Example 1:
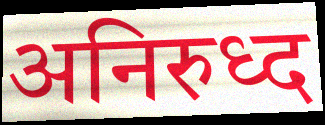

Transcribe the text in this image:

अनिरुध्द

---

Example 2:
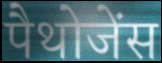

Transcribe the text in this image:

पैथोजेंस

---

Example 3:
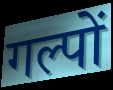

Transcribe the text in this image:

गल्पों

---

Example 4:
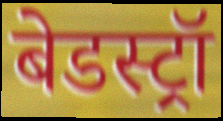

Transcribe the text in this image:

बेडस्ट्रॉ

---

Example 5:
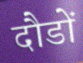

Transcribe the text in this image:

दौडों